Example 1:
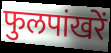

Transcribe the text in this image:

फुलपांखरें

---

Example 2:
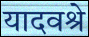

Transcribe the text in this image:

यादवश्रे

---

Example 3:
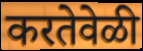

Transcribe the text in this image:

करतेवेळी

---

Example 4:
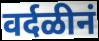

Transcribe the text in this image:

वर्दळीनं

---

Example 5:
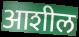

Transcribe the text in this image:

आशील